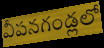
వీపనగండ్లలో